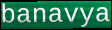
banavya